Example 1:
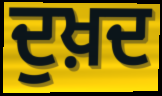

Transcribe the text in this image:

ਦੁਖ਼ਦ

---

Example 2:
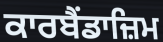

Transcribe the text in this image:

ਕਾਰਬੈਂਡਾਜ਼ਿਮ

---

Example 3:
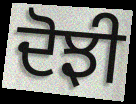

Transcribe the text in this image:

ਦੋਝੀ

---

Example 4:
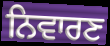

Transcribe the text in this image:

ਨਿਵਾਰਣ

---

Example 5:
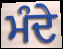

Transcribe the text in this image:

ਮੰਦੇ